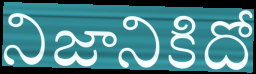
నిజానికిదో